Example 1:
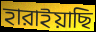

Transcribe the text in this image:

হারাইয়াছি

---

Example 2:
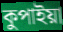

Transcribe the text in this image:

কুপাইয়া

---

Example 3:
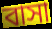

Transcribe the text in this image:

বাসা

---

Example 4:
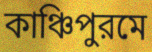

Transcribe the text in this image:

কাঞ্চিপুরমে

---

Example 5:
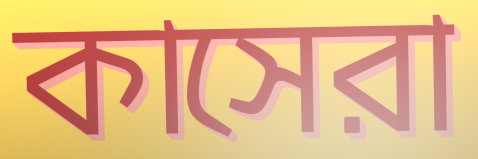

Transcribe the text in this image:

কাসেরা